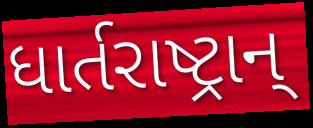
ધાર્તરાષ્ટ્રાન્